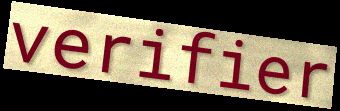
verifier